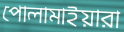
পোলামাইয়ারা